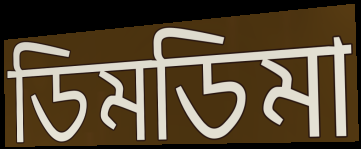
ডিমডিমা